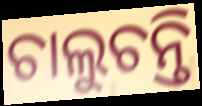
ଚାଲୁଚନ୍ତି